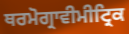
ਥਰਮੋਗ੍ਰਾਵੀਮੀਟ੍ਰਿਕ